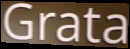
Grata